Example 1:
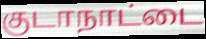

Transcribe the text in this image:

குடாநாட்டை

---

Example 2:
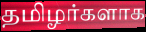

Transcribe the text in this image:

தமிழர்களாக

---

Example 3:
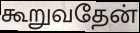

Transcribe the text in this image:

கூறுவதேன்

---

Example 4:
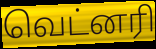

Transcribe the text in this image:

வெட்னரி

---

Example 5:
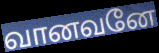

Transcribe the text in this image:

வானவனே